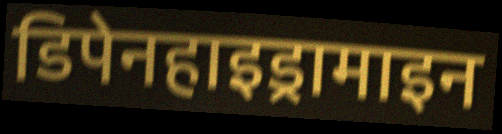
डिपेनहाइड्रामाइन